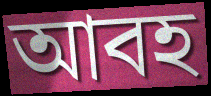
আবহ